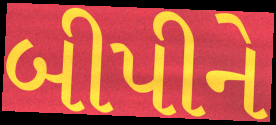
બીપીને